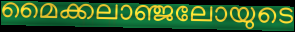
മൈക്കലാഞ്ജലോയുടെ